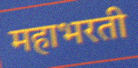
महाभरती